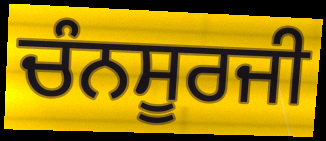
ਚੰਨਸੂਰਜੀ